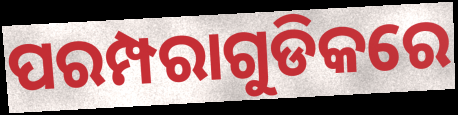
ପରମ୍ପରାଗୁଡିକରେ